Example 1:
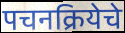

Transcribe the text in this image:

पचनक्रियेचे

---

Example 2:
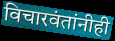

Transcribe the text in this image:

विचारवंतांनीही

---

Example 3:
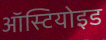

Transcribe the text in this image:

ऑस्टियोइड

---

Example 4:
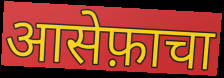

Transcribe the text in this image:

आसेफ़ाचा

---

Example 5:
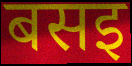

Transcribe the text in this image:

बसइ